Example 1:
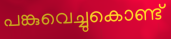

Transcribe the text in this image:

പങ്കുവെച്ചുകൊണ്ട്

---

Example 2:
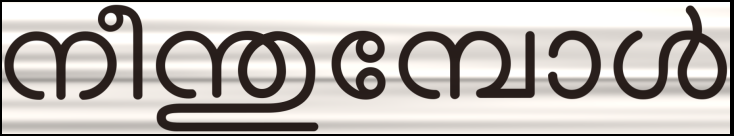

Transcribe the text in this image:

നീന്തുമ്പോൾ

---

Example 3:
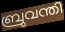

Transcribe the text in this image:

ബ്രുവന്തി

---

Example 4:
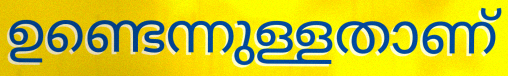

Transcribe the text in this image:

ഉണ്ടെന്നുള്ളതാണ്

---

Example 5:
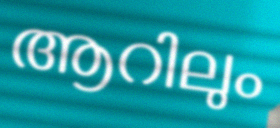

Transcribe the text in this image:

ആറിലും